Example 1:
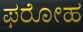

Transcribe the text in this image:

ಫರೋಹ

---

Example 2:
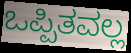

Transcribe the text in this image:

ಒಪ್ಪಿತವಲ್ಲ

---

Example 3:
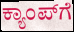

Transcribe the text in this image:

ಕ್ಯಾಂಪ್‍ಗೆ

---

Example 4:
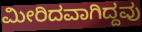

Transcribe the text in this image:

ಮೀರಿದವಾಗಿದ್ದವು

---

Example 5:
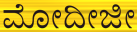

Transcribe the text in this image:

ಮೋದೀಜೀ